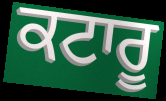
ਕਟਾਰੂ